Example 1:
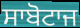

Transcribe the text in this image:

ਸਾਬੋਟਾਜ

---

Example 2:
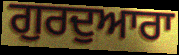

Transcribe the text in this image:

ਗੁਰਦੁਆਰਾ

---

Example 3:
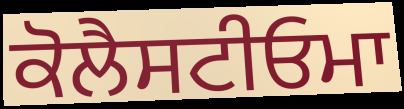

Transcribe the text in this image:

ਕੋਲੈਸਟੀਓਮਾ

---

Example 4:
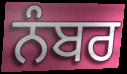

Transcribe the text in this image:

ਨੰਬਰ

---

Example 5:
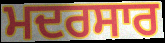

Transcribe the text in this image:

ਮਦਰਸਾਰ